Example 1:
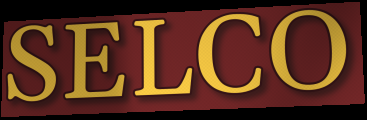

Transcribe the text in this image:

SELCO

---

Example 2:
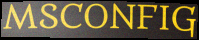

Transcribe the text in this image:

MSCONFIG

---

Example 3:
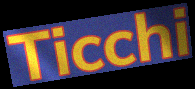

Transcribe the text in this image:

Ticchi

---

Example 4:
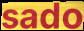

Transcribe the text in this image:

sado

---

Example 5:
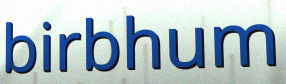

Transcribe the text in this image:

birbhum